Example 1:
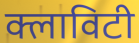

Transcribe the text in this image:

क्लाविटी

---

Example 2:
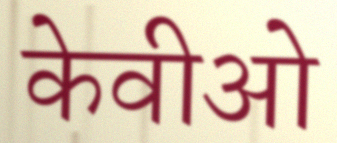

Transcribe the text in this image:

केवीओ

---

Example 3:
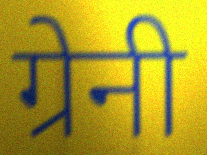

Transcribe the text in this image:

ग्रेनी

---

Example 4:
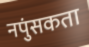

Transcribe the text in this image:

नपुंसकता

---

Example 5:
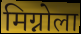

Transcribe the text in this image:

मिग्नोला